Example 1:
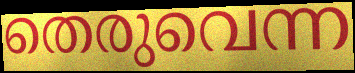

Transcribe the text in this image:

തെരുവെന്ന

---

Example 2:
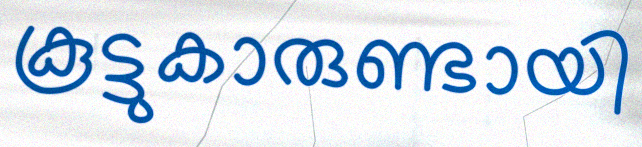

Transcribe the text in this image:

കൂട്ടുകാരുണ്ടായി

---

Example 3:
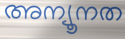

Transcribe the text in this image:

അന്യൂനത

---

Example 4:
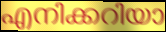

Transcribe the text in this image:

എനിക്കറിയാ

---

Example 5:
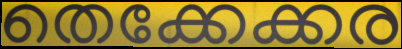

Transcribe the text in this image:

തെക്കേക്കര